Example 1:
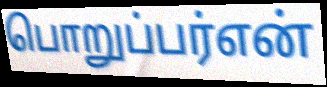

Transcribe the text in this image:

பொறுப்பர்என்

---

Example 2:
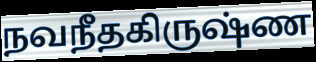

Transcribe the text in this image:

நவநீதகிருஷ்ண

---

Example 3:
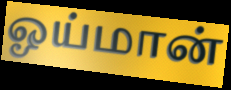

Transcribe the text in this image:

ஓய்மான்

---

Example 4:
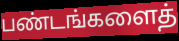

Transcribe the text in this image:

பண்டங்களைத்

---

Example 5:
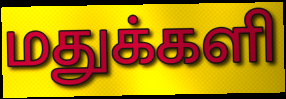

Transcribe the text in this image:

மதுக்களி